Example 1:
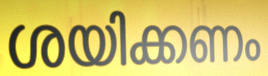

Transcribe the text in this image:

ശയിക്കണം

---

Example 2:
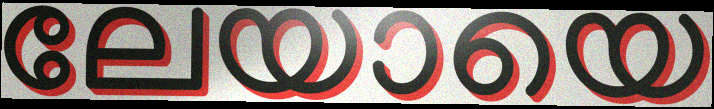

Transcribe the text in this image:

ലേയായെ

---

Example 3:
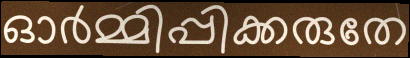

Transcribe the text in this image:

ഓർമ്മിപ്പിക്കരുതേ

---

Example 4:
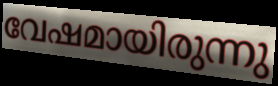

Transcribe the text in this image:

വേഷമായിരുന്നു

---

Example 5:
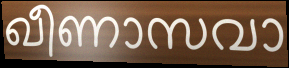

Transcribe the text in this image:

ഖീണാസവാ